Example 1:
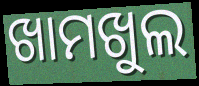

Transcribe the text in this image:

ଖାମଖୁଲ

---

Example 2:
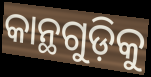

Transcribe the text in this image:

କାନ୍ଥଗୁଡ଼ିକୁ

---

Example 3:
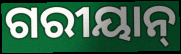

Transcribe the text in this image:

ଗରୀୟାନ୍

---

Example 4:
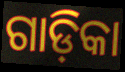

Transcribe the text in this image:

ଗାଡ଼ିକା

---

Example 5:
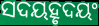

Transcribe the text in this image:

ସଦୟହୃଦୟଂ